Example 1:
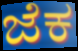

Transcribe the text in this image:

ಜೆಕ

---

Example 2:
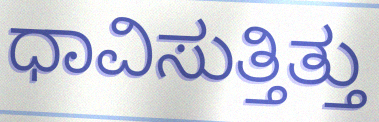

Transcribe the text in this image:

ಧಾವಿಸುತ್ತಿತ್ತು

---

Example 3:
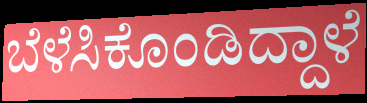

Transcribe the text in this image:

ಬೆಳೆಸಿಕೊಂಡಿದ್ದಾಳೆ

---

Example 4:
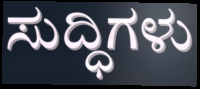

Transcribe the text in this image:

ಸುದ್ಧಿಗಳು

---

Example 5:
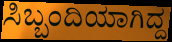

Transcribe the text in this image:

ಸಿಬ್ಬಂದಿಯಾಗಿದ್ದ